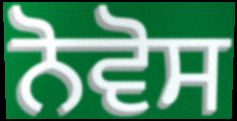
ਨੋਵੋਸ